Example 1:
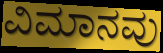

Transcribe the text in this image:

ವಿಮಾನವು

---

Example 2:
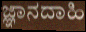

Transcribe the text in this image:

ಜ್ಞಾನದಾಹಿ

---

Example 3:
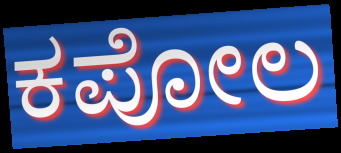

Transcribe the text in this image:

ಕಪೋಲ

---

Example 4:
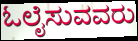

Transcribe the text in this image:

ಓಲೈಸುವವರು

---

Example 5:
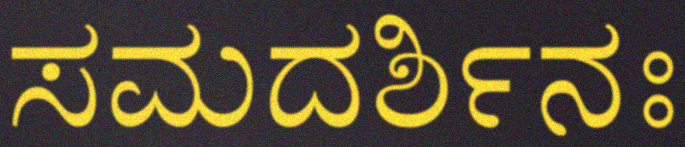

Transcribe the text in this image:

ಸಮದರ್ಶಿನಃ